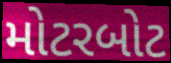
મોટરબોટ